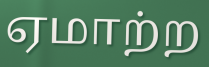
ஏமாற்ற